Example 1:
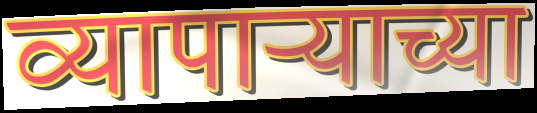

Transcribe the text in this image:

व्यापाऱ्याच्या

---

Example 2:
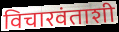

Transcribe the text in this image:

विचारवंताशी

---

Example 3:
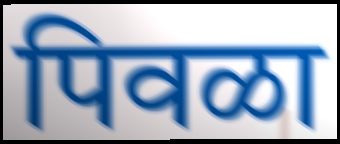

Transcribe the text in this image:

पिवळा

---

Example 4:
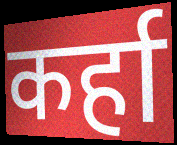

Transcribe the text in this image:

कर्हा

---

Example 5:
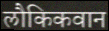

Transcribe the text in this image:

लौकिकवान